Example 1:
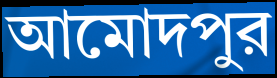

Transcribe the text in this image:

আমোদপুর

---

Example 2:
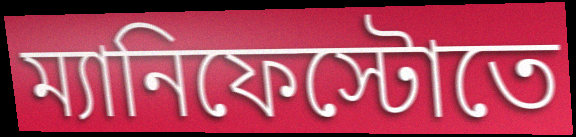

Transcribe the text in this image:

ম্যানিফেস্টোতে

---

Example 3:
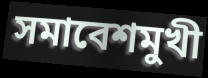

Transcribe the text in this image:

সমাবেশমুখী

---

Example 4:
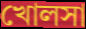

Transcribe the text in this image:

খোলসা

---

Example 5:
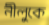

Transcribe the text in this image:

নীলুকে